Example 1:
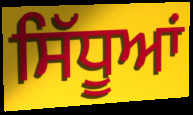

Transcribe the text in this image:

ਸਿੱਧੂਆਂ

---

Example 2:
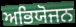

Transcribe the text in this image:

ਅਭਿਯੋਜਨ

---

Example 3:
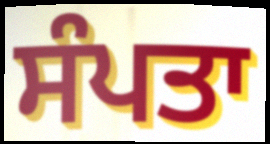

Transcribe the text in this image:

ਸੰਪਤਾ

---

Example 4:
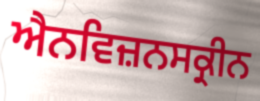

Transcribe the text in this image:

ਐਨਵਿਜ਼ਨਸਕ੍ਰੀਨ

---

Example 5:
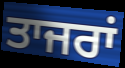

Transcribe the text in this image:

ਤਾਜਰਾਂ